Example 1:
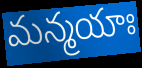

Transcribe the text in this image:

మన్మయాః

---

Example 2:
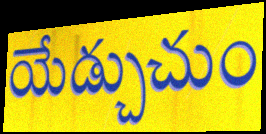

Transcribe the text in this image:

యేడ్చుచుం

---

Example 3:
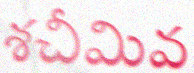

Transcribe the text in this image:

శచీమివ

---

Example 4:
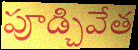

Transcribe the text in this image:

పూడ్చివేత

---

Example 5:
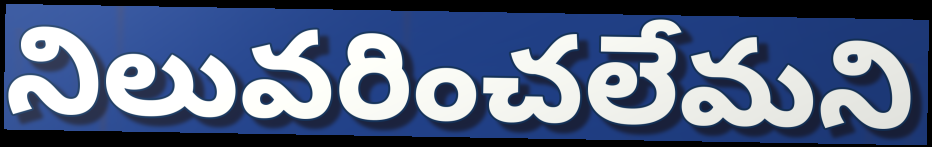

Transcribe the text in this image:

నిలువరించలేమని